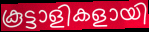
കൂട്ടാളികളായി